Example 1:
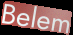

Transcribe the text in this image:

Belem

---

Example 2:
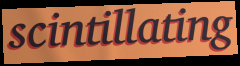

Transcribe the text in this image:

scintillating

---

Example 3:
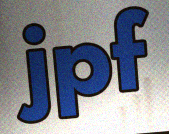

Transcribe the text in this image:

jpf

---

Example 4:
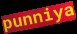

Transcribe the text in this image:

punniya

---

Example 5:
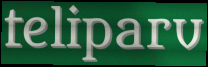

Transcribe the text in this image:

teliparu